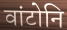
वांटोनि